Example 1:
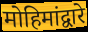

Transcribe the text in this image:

मोहिमांद्वारे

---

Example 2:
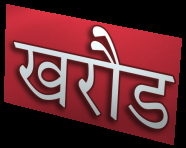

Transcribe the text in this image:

खरौड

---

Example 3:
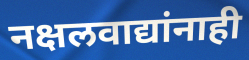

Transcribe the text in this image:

नक्षलवाद्यांनाही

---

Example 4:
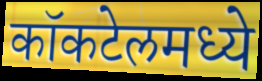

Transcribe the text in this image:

कॉकटेलमध्ये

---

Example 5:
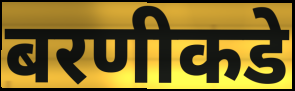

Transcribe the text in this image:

बरणीकडे